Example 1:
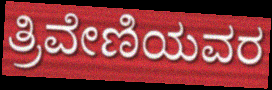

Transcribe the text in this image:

ತ್ರಿವೇಣಿಯವರ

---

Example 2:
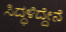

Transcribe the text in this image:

ಸಿದ್ಧಳಿದ್ದೇನೆ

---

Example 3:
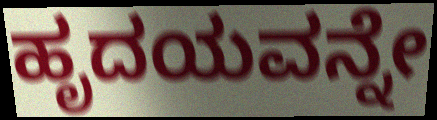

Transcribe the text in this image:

ಹೃದಯವನ್ನೇ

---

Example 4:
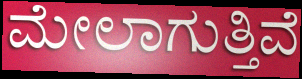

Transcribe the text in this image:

ಮೇಲಾಗುತ್ತಿವೆ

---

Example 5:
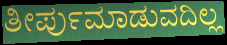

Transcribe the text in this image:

ತೀರ್ಪುಮಾಡುವದಿಲ್ಲ